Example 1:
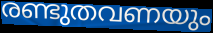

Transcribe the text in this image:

രണ്ടുതവണയും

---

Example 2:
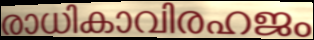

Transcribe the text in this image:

രാധികാവിരഹജം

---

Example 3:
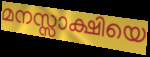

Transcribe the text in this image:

മനസ്സാക്ഷിയെ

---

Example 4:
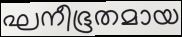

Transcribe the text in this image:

ഘനീഭൂതമായ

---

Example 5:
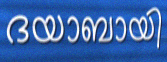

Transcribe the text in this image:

ദയാബായി